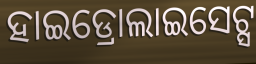
ହାଇଡ୍ରୋଲାଇସେଟ୍ସ